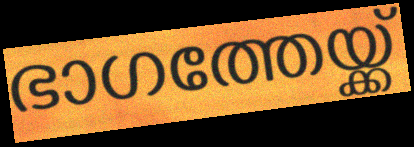
ഭാഗത്തേയ്ക്ക്